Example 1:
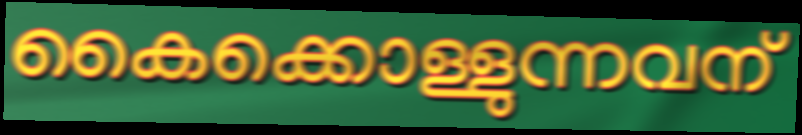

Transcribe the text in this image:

കൈക്കൊള്ളുന്നവന്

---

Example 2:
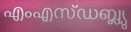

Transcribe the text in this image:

എംഎസ്ഡബ്ല്യു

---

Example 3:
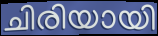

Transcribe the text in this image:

ചിരിയായി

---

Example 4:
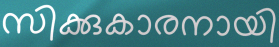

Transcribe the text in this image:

സിക്കുകാരനായി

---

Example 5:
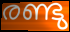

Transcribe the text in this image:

രണ്ടു